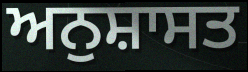
ਅਨੁਸ਼ਾਸਤ